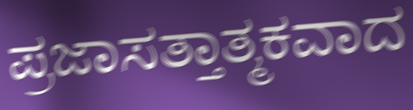
ಪ್ರಜಾಸತ್ತಾತ್ಮಕವಾದ